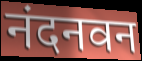
नंदनवन